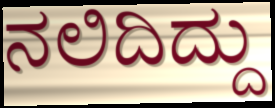
ನಲಿದಿದ್ದು